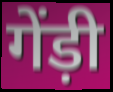
गेंड़ी